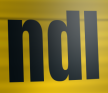
ndl